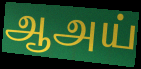
ஆஅய்